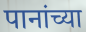
पानांच्या